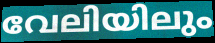
വേലിയിലും